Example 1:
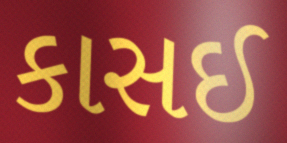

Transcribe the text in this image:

કાસઈ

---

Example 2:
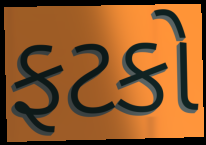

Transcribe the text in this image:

ફટકો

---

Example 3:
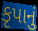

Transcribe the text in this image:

કૃપાનું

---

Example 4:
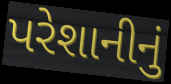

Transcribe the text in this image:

પરેશાનીનું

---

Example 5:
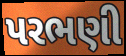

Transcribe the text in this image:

પરભણી